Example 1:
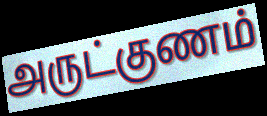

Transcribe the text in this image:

அருட்குணம்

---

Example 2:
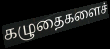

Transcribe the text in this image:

கழுதைகளைச்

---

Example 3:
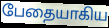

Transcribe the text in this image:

பேதையாகிய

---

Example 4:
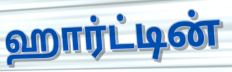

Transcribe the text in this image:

ஹார்ட்டின்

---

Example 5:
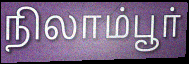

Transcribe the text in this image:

நிலாம்பூர்